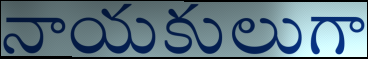
నాయకులుగా